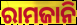
ରାମଜାନି